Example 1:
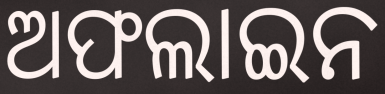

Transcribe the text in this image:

ଅଫଲାଇନ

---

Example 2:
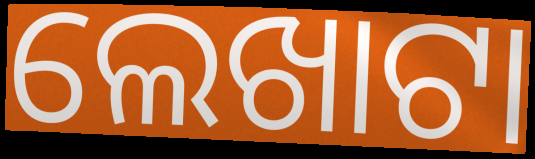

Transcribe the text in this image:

ଲେଖାଟା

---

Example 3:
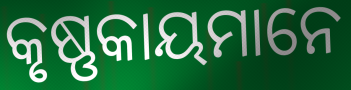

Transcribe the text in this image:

କୃଷ୍ଣକାୟମାନେ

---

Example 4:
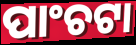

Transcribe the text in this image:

ପାଂଚଟା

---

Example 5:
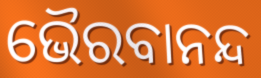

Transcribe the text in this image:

ଭୈରବାନନ୍ଦ